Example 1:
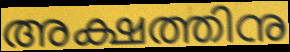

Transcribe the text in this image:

അക്ഷത്തിനു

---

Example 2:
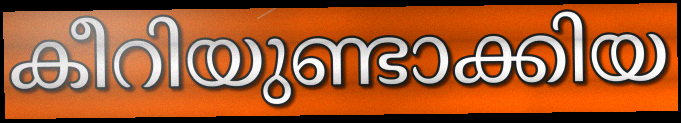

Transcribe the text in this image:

കീറിയുണ്ടാക്കിയ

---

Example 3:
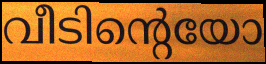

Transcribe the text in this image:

വീടിന്റെയോ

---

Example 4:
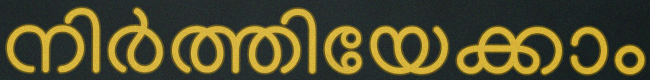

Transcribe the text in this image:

നിർത്തിയേക്കാം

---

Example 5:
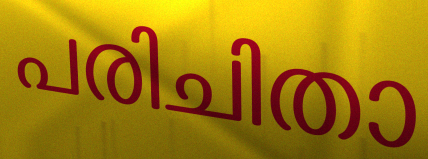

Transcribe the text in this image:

പരിചിതാ